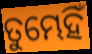
ତୁମ୍ଭେହିଁ